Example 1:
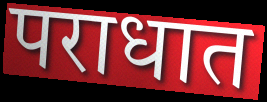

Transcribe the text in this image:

पराधात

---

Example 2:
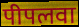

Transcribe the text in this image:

पीपलवा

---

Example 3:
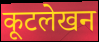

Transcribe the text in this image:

कूटलेखन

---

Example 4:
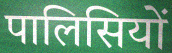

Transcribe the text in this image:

पालिसियों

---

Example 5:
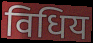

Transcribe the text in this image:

विधिय